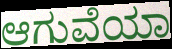
ಆಗುವೆಯಾ